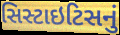
સિસ્ટાઇટિસનું